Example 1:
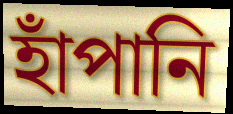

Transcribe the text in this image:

হাঁপানি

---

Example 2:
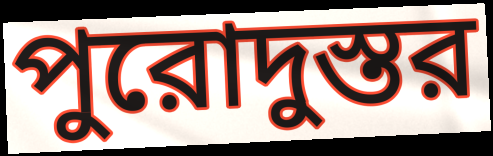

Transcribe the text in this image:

পুরোদুস্তর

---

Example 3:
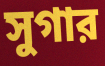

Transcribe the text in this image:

সুগার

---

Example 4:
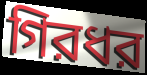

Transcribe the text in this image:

গিরধর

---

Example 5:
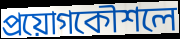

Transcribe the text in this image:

প্রয়োগকৌশলে